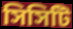
সিসিটি